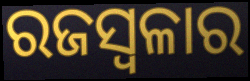
ରଜସ୍ୱଳାର